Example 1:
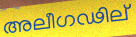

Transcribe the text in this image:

അലീഗഢില്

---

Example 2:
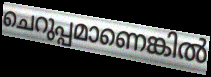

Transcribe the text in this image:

ചെറുപ്പമാണെങ്കിൽ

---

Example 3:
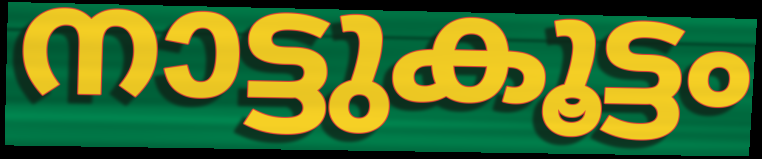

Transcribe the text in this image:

നാട്ടുകൂട്ടം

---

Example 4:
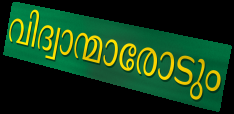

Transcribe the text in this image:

വിദ്വാന്മാരോടും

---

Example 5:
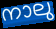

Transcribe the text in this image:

നാലു